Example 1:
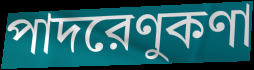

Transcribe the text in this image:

পাদরেণুকণা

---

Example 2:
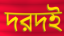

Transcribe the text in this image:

দরদই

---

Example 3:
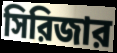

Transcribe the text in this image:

সিরিজার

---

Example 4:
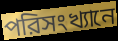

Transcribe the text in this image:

পরিসংখ্যানে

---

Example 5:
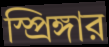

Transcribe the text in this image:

স্প্রিঙ্গার